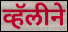
व्हॅलीने